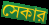
সেকার